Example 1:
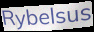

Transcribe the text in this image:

Rybelsus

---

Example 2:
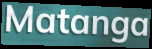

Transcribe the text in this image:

Matanga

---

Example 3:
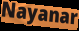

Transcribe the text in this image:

Nayanar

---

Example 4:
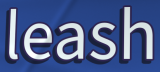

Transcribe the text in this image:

leash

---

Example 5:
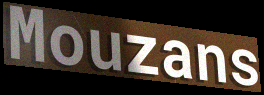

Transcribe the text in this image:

Mouzans